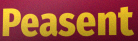
Peasent